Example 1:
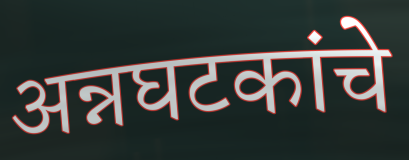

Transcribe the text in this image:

अन्नघटकांचे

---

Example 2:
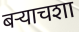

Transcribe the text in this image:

बऱ्याचशा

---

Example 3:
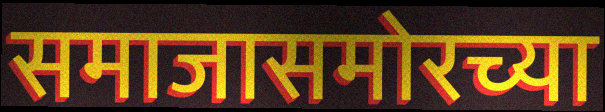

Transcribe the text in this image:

समाजासमोरच्या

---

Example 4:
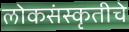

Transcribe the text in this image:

लोकसंस्कृतीचे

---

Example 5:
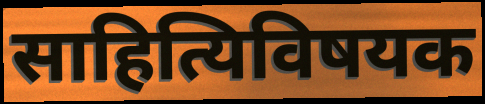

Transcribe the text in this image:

साहित्यिविषयक